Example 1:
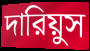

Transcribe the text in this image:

দারিয়ুস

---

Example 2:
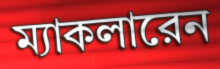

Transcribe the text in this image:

ম্যাকলারেন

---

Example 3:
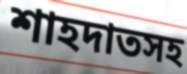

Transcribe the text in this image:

শাহদাতসহ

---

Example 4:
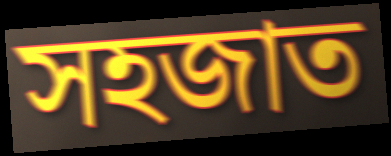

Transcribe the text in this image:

সহজাত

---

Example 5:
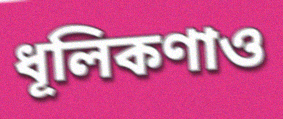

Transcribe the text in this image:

ধূলিকণাও